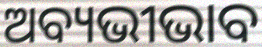
ଅବ୍ୟଭୀଭାବ